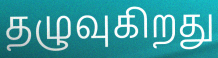
தழுவுகிறது